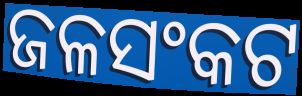
ଜଳସଂକଟ